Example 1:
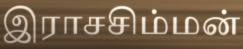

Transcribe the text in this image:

இராசசிம்மன்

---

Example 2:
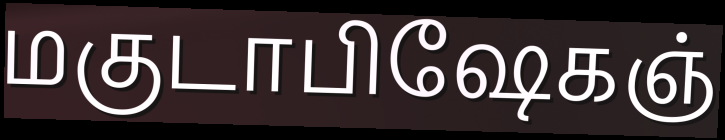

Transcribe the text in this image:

மகுடாபிஷேகஞ்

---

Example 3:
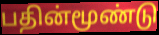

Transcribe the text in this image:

பதின்மூண்டு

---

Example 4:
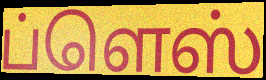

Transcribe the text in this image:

ப்ளெஸ்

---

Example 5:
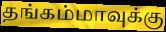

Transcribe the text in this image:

தங்கம்மாவுக்கு